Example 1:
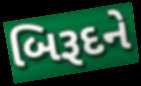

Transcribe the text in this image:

બિરૂદને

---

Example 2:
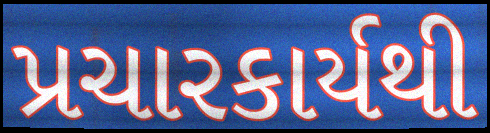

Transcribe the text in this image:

પ્રચારકાર્યથી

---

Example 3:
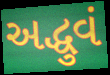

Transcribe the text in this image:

અદ્ધુવં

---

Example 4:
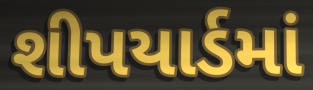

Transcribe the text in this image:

શીપયાર્ડમાં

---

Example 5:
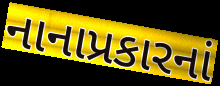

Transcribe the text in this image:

નાનાપ્રકારનાં